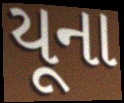
યૂના